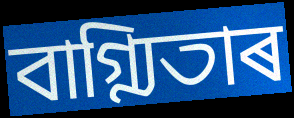
বাগ্মিতাৰ